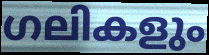
ഗലികളും